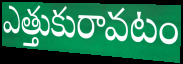
ఎత్తుకురావటం